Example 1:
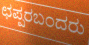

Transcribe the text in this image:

ಛಪ್ಪರಬಂದರು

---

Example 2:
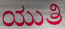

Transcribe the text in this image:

ಯುತಿ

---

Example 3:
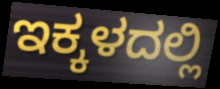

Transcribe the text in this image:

ಇಕ್ಕಳದಲ್ಲಿ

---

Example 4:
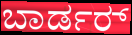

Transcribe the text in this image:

ಬಾರ್ಡರ್‍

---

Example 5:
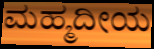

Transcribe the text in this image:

ಮಹ್ಮದೀಯ